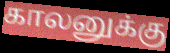
காலனுக்கு